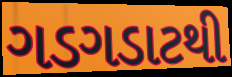
ગડગડાટથી